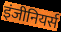
इंजीनियर्स